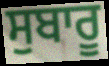
ਸੁਬਾਰੂ